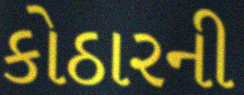
કોઠારની